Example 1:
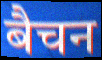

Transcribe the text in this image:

बैचन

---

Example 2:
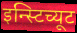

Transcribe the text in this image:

इन्स्टिच्यूट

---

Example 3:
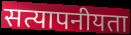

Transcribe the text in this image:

सत्यापनीयता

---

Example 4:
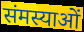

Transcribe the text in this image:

संमस्याओं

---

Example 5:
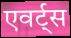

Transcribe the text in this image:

एवर्ट्स